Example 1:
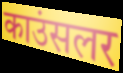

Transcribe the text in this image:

काउंसलर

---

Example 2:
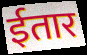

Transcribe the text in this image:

ईतार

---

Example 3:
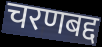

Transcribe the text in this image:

चरणबद्द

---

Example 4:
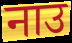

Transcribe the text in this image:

नाउ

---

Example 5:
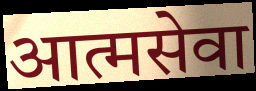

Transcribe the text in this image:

आत्मसेवा